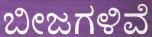
ಬೀಜಗಳಿವೆ